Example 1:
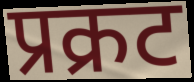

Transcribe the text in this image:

प्रक्रट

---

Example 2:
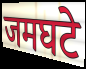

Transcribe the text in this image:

जमघटे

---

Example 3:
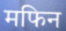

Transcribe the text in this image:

मफिन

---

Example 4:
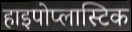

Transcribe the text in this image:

हाइपोप्लास्टिक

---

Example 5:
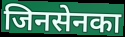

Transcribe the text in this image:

जिनसेनका